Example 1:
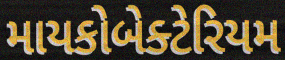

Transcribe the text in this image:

માયકોબેક્ટેરિયમ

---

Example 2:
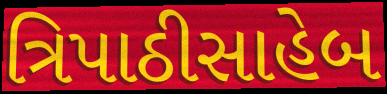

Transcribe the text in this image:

ત્રિપાઠીસાહેબ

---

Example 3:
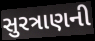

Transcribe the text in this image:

સુરત્રાણની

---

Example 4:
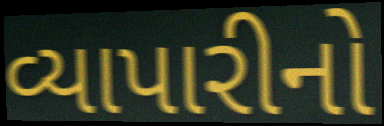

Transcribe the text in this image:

વ્યાપારીનો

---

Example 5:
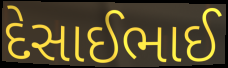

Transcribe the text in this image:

દેસાઈભાઈ